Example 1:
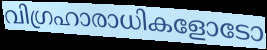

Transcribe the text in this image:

വിഗ്രഹാരാധികളോടോ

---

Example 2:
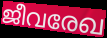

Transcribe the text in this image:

ജീവരേഖ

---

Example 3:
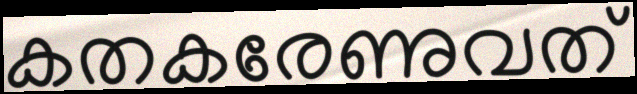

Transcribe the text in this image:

കതകരേണുവത്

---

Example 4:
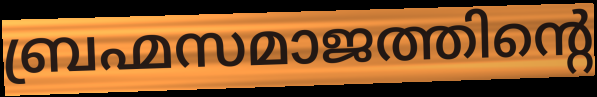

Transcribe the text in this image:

ബ്രഹ്മസമാജത്തിന്റെ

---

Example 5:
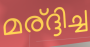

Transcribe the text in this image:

മര്ദ്ദിച്ച